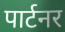
पार्टनर